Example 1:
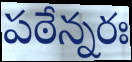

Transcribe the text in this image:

పఠేన్నరః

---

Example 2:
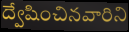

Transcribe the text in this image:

ద్వేషించినవారిని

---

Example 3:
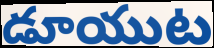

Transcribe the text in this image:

డూయుట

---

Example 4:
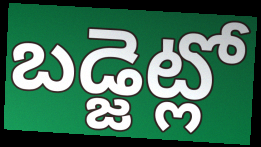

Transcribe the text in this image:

బడ్జెట్లో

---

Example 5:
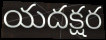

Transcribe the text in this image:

యదక్షర